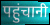
पहुंचानी